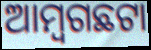
ଆମ୍ବଗଛଟା